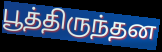
பூத்திருந்தன